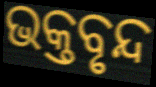
ଭକ୍ତବୃନ୍ଦ